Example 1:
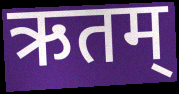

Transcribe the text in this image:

ऋतम्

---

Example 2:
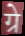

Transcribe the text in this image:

ग्रे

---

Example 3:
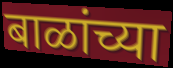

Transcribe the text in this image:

बाळांच्या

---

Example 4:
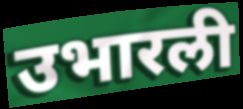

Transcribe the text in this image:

उभारली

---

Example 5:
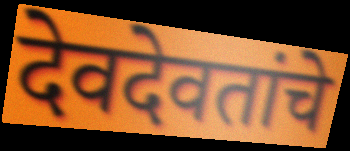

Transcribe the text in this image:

देवदेवतांचे